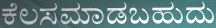
ಕೆಲಸಮಾಡಬಹುದು